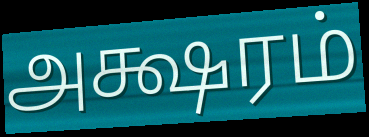
அக்ஷரம்